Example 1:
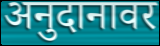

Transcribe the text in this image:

अनुदानावर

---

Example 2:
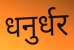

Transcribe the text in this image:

धनुर्धर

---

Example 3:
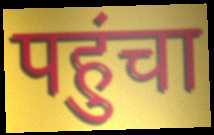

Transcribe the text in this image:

पहुंचा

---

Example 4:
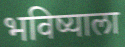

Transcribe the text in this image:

भविष्याला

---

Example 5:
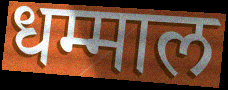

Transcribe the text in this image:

धम्माल